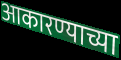
आकारण्याच्या